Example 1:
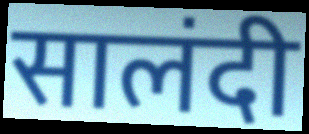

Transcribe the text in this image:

सालंदी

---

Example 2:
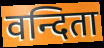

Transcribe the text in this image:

वन्दिता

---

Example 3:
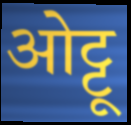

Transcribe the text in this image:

ओट्टू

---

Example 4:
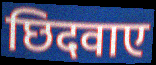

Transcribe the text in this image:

छिदवाए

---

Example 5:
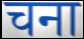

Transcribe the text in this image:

चना